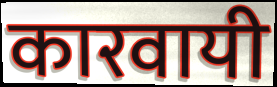
कारवायी